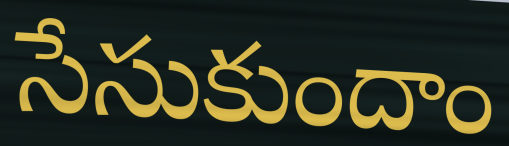
సేసుకుందాం